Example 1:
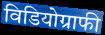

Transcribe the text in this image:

विडियोग्राफी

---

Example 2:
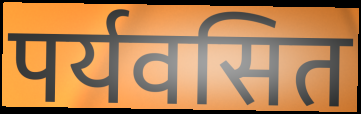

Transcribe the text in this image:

पर्यवसित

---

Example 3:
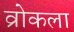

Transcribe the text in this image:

व्रोकला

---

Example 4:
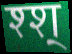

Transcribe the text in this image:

श्श्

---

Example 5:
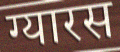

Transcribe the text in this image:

ग्यारस